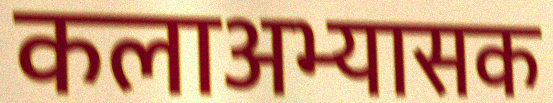
कलाअभ्यासक